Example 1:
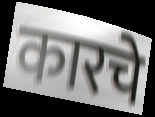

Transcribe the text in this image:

कारचे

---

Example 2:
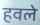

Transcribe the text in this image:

हवले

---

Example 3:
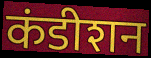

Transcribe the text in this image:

कंडीशन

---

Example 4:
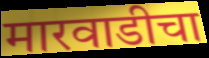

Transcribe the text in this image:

मारवाडीचा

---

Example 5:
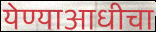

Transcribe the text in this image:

येण्याआधीचा